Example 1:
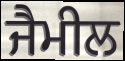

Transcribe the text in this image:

ਜੈਮੀਲ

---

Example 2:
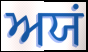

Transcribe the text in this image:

ਅਯਂ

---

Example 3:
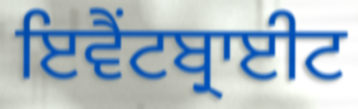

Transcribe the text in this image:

ਇਵੈਂਟਬ੍ਰਾਈਟ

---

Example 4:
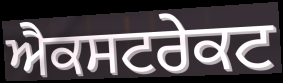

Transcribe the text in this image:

ਐਕਸਟਰੇਕਟ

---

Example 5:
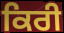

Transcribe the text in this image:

ਕਿਰੀ